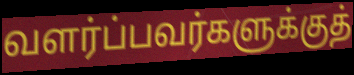
வளர்ப்பவர்களுக்குத்